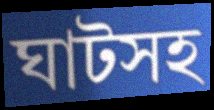
ঘাটসহ